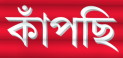
কাঁপছি